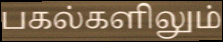
பகல்களிலும்